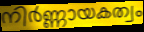
നിർണ്ണായകത്വം